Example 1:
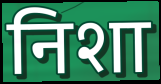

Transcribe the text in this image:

निशा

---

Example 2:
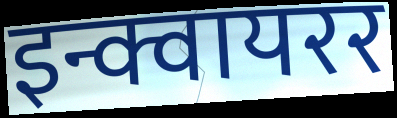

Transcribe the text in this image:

इन्क्वायरर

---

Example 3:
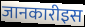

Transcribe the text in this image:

जानकारीइस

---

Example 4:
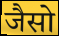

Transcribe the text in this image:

जैसो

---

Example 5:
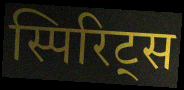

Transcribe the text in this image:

स्पिरिट्स